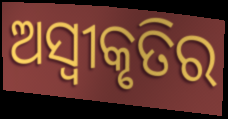
ଅସ୍ୱୀକୃତିର